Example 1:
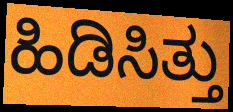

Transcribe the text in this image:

ಹಿಡಿಸಿತ್ತು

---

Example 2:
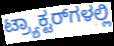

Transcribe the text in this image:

ಟ್ರ್ಯಾಕ್ಟರ್‌ಗಳಲ್ಲಿ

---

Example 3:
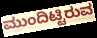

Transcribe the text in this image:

ಮುಂದಿಟ್ಟಿರುವ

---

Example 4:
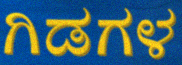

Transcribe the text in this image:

ಗಿಡಗಳ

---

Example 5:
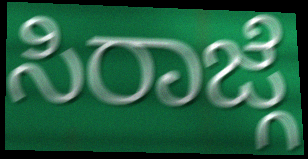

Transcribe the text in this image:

ಸಿರಾಜ್ಗೆ